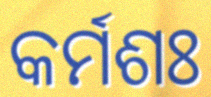
କର୍ମଶଃ